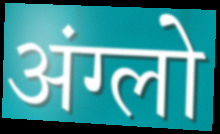
अंग्लो